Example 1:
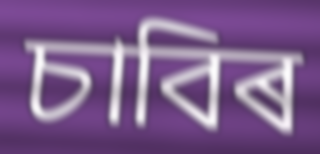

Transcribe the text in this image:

চাবিৰ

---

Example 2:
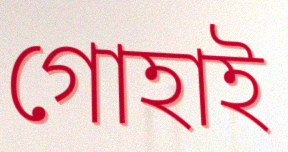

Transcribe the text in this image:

গোহাই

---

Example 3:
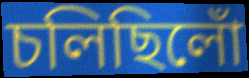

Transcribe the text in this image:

চলিছিলোঁ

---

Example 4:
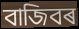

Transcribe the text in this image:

বাজিবৰ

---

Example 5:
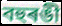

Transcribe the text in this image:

বহুৰঙী